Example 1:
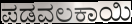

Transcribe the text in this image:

ಪಡವಲಕಾಯಿ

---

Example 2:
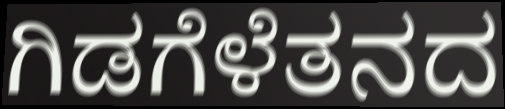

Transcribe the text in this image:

ಗಿಡಗೆಳೆತನದ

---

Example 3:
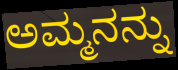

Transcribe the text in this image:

ಅಮ್ಮನನ್ನು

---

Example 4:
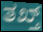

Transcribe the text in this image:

ತಖ್ತ್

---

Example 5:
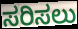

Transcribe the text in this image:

ಸರಿಸಲು